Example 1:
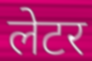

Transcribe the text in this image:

लेटर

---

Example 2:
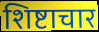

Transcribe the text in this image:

शिष्टाचार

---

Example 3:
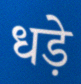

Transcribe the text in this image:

धड़े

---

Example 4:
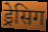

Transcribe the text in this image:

ड्रेसिग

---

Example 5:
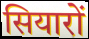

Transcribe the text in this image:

सियारों